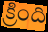
క్రింది